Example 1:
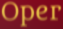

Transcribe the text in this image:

Oper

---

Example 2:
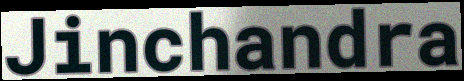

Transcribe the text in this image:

Jinchandra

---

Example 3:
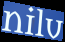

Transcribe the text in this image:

nilu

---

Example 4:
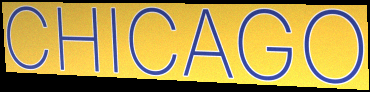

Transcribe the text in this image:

CHICAGO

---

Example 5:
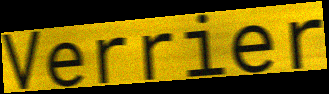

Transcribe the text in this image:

Verrier